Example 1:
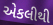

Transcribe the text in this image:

એકલીથી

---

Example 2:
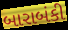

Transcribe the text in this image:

બારાબંકી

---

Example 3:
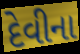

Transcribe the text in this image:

દેવીના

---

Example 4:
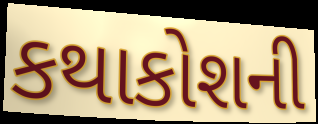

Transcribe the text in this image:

કથાકોશની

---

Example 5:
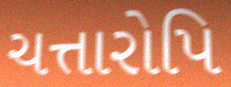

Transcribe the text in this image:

ચત્તારોપિ